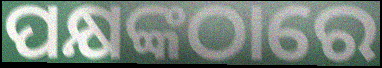
ପକ୍ଷଙ୍କଠାରେ